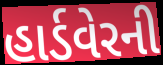
હાર્ડવેરની